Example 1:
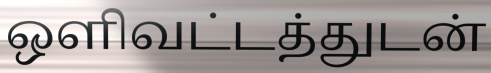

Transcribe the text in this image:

ஒளிவட்டத்துடன்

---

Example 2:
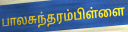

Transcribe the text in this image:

பாலசுந்தரம்பிள்ளை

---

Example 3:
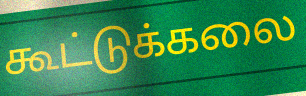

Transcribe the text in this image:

கூட்டுக்கலை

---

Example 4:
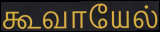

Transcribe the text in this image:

கூவாயேல்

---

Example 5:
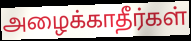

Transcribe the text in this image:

அழைக்காதீர்கள்